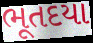
ભૂતદયા